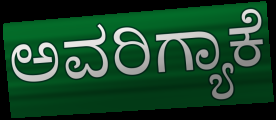
ಅವರಿಗ್ಯಾಕೆ